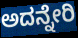
ಅದನ್ನೇರಿ